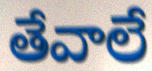
తేవాలే